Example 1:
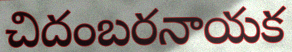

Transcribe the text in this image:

చిదంబరనాయక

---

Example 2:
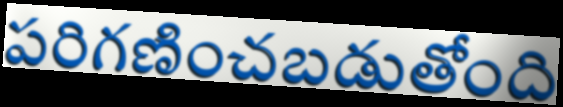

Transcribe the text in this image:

పరిగణించబడుతోంది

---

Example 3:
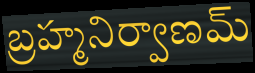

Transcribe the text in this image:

బ్రహ్మనిర్వాణమ్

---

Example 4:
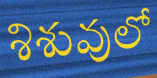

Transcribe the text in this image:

శిశువులో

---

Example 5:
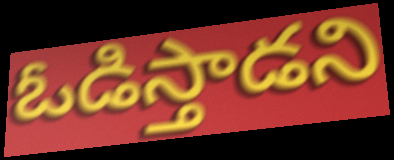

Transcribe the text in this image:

ఓడిస్తాడని